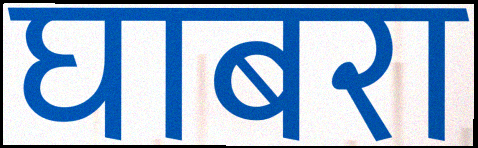
घाबरा